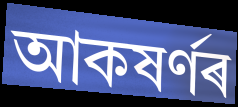
আকষৰ্ণৰ